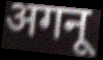
अगनू